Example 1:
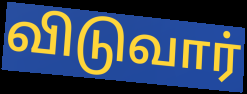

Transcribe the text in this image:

விடுவார்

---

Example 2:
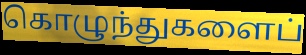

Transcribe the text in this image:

கொழுந்துகளைப்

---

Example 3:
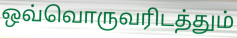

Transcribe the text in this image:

ஒவ்வொருவரிடத்தும்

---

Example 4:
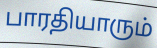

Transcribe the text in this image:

பாரதியாரும்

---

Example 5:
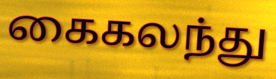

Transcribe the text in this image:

கைகலந்து